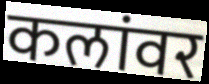
कलांवर